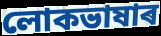
লোকভাষাৰ